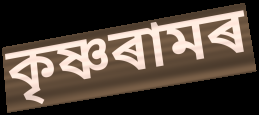
কৃষ্ণৰামৰ